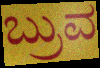
ಬ್ರುವ